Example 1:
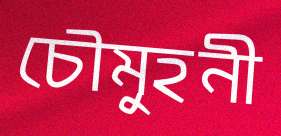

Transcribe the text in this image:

চৌমুহনী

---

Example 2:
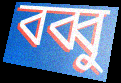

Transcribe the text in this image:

বব্বু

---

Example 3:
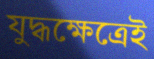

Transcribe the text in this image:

যুদ্ধক্ষেত্রেই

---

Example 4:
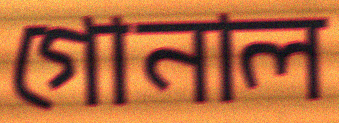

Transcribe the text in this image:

গোনাল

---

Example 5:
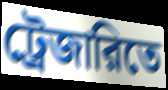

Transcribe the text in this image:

ট্রেজারিতে